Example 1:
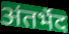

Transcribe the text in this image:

अंतर्भेद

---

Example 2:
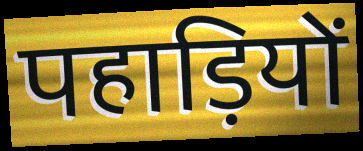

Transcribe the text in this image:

पहाड़ियों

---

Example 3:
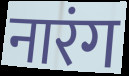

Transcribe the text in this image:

नारंग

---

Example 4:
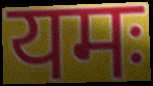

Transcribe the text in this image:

यमः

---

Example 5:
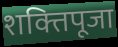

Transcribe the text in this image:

शक्तिपूजा